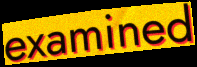
examined